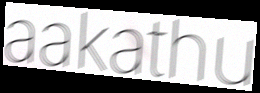
aakathu